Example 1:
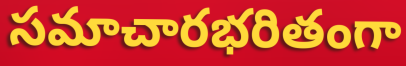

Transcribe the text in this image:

సమాచారభరితంగా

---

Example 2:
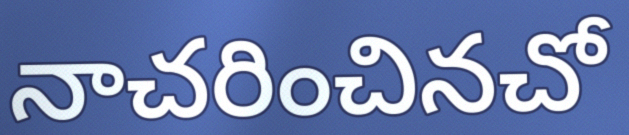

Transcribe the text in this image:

నాచరించినచో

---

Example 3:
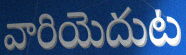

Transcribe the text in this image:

వారియెదుట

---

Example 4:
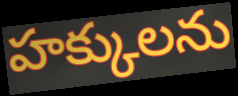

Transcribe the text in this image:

హక్కులను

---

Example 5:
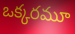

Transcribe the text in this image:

ఒక్కరమూ